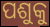
ପଶୁକୁ